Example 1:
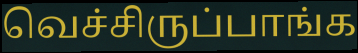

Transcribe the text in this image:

வெச்சிருப்பாங்க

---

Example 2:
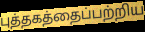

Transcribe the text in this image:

புத்தகத்தைப்பற்றிய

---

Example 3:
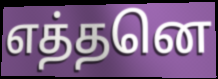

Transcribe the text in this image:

எத்தனெ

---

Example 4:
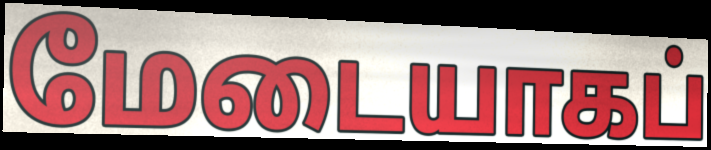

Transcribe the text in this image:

மேடையாகப்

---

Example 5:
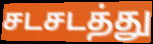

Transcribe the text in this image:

சடசடத்து